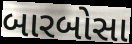
બારબોસા